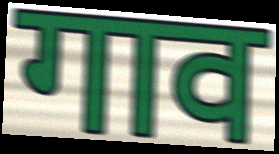
गाव